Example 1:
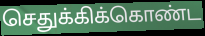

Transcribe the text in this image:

செதுக்கிக்கொண்ட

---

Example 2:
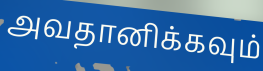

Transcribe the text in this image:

அவதானிக்கவும்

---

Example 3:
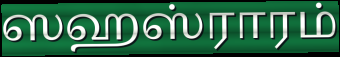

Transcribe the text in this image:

ஸஹஸ்ராரம்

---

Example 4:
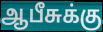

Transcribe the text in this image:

ஆபீசுக்கு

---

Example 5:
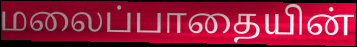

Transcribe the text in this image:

மலைப்பாதையின்